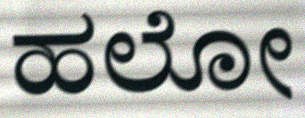
ಹಲೋ